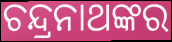
ଚନ୍ଦ୍ରନାଥଙ୍କର